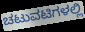
ಚಟುವಟಿಗಳಲ್ಲಿ